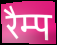
रैम्प